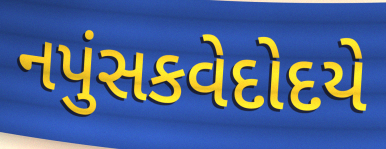
નપુંસકવેદોદયે